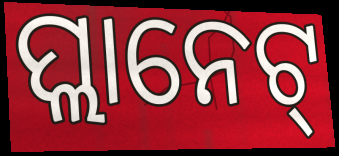
ପ୍ଲାନେଟ୍